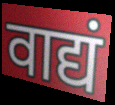
वाद्यं